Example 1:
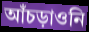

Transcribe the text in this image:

আঁচড়াওনি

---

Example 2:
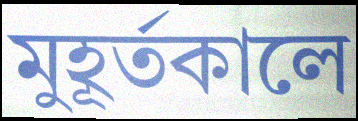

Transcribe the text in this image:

মুহূর্তকালে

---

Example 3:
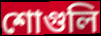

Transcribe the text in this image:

শোগুলি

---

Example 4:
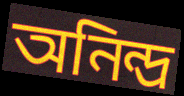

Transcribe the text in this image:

অনিন্দ্র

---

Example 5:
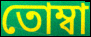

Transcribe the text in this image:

তোম্বা